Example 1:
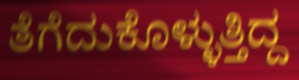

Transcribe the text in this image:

ತೆಗೆದುಕೊಳ್ಳುತ್ತಿದ್ದ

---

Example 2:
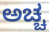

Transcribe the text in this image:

ಅಚ್ಚ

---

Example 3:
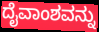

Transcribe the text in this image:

ದೈವಾಂಶವನ್ನು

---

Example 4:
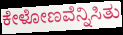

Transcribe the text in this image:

ಕೇಳೋಣವೆನ್ನಿಸಿತು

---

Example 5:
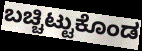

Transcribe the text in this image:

ಬಚ್ಚಿಟ್ಟುಕೊಂಡ